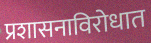
प्रशासनाविरोधात